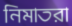
নিমাতরা